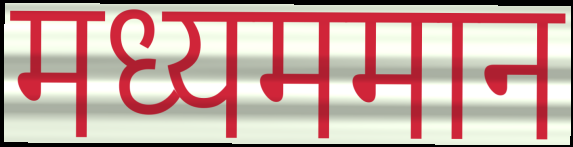
मध्यममान